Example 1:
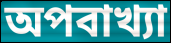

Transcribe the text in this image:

অপবাখ্যা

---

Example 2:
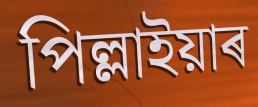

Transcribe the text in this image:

পিল্লাইয়াৰ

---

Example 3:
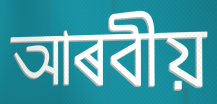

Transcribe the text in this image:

আৰবীয়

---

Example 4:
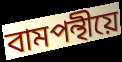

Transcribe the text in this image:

বামপন্থীয়ে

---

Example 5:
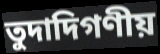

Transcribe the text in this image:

তুদাদিগণীয়